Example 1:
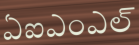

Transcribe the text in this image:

ఏఐఎంఎల్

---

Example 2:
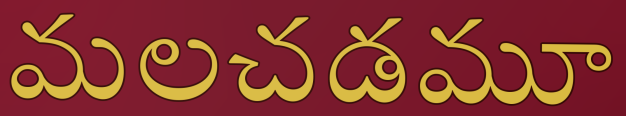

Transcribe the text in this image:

మలచడమూ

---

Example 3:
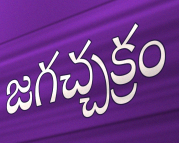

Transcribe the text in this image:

జగచ్చక్రం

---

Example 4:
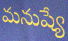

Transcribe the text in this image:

మనుష్యే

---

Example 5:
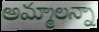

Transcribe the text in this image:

అమ్మాలన్నా